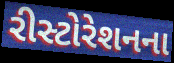
રીસ્ટોરેશનના